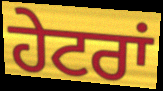
ਹੇਟਰਾਂ